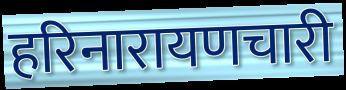
हरिनारायणचारी